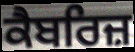
ਕੈਬਰਿਜ਼